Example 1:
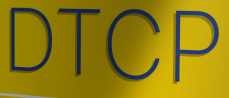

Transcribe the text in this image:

DTCP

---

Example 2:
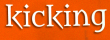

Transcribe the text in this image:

kicking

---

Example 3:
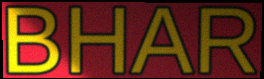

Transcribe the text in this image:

BHAR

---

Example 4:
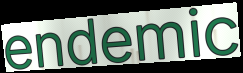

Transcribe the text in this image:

endemic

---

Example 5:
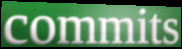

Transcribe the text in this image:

commits